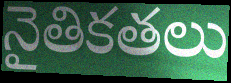
నైతికతలు